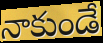
నాకుండే